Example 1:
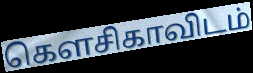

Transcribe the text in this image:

கௌசிகாவிடம்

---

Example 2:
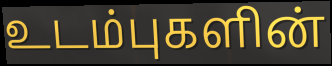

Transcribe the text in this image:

உடம்புகளின்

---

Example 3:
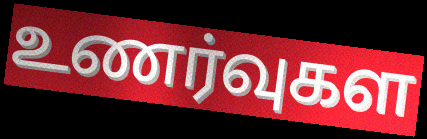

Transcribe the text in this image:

உணர்வுகள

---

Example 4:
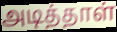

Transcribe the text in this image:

அடித்தாள்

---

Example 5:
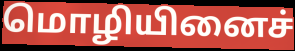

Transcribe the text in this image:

மொழியினைச்